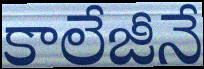
కాలేజీనే